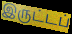
இருட்டப்